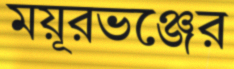
ময়ূরভঞ্জের